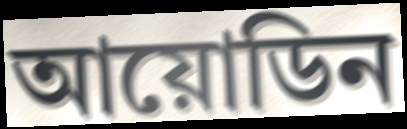
আয়োডিন